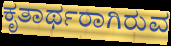
ಕೃತಾರ್ಥರಾಗಿರುವ